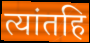
त्यांतहि